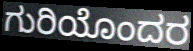
ಗುರಿಯೊಂದರ